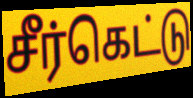
சீர்கெட்டு